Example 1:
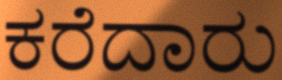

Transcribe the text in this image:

ಕರೆದಾರು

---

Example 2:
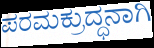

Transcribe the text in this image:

ಪರಮಕ್ರುದ್ಧನಾಗಿ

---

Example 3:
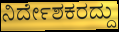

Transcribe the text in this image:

ನಿರ್ದೇಶಕರದ್ದು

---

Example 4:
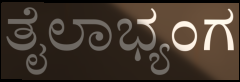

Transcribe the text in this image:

ತೈಲಾಭ್ಯಂಗ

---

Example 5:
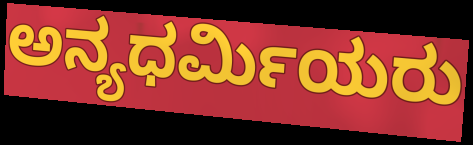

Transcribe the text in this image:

ಅನ್ಯಧರ್ಮಿಯರು